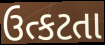
ઉત્કટતા